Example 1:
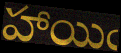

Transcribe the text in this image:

హాయిఁ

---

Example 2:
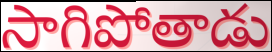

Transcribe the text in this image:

సాగిపోతాడు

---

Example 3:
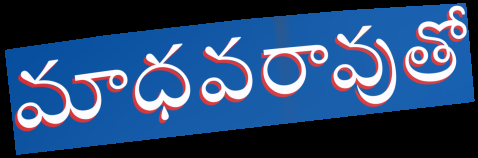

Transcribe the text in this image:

మాధవరావుతో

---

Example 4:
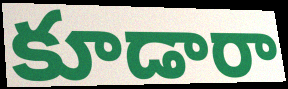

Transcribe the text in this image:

కూడారా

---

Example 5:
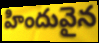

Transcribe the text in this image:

హిందువైన